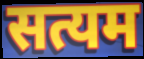
सत्यम